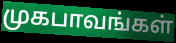
முகபாவங்கள்